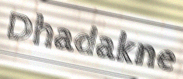
Dhadakne